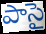
పాసై